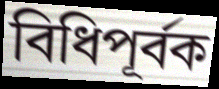
বিধিপূর্বক